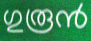
ഗുരൂൻ